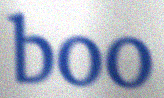
boo